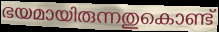
ഭയമായിരുന്നതുകൊണ്ട്